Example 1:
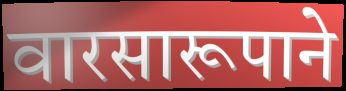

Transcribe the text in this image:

वारसारूपाने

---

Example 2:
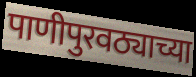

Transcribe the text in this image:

पाणीपुरवठ्याच्या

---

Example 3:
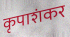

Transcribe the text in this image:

कृपाशंकर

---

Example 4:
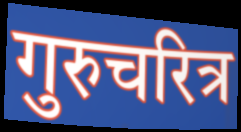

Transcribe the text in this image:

गुरुचरित्र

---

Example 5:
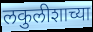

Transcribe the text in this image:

लकुलीशाच्या